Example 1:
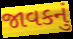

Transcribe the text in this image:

જાવકનું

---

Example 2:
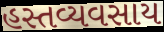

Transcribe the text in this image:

હસ્તવ્યવસાય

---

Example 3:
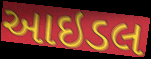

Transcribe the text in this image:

આઇડલ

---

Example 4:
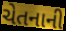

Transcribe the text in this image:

ચેતનાની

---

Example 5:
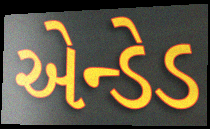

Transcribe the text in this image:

એન્ડેડ